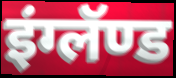
इंग्लॅण्ड